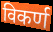
विकर्ण